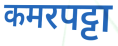
कमरपट्टा